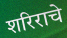
शरिराचे